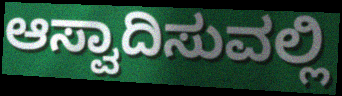
ಆಸ್ವಾದಿಸುವಲ್ಲಿ